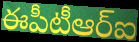
ఈపీటీఆర్ఐ